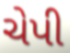
ચેપી